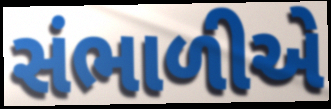
સંભાળીએ